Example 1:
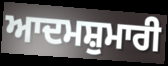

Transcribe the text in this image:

ਆਦਮਸ਼ੁਮਾਰੀ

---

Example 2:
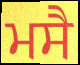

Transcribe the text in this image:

ਮਸੈ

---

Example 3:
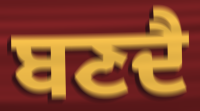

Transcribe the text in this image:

ਬਣਦੈ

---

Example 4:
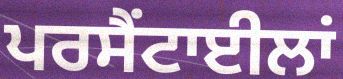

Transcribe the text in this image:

ਪਰਸੈਂਟਾਈਲਾਂ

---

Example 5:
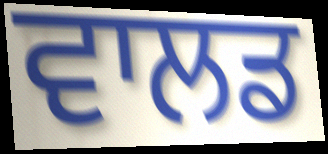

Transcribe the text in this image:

ਵਾਲਡ